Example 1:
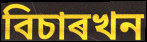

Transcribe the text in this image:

বিচাৰখন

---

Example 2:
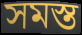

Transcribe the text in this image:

সমস্ত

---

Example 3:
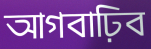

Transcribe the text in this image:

আগবাঢ়িব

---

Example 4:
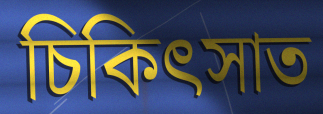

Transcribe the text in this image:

চিকিৎসাত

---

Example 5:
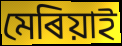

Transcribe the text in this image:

মেৰিয়াই